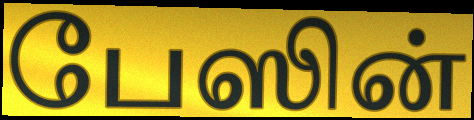
பேஸின்